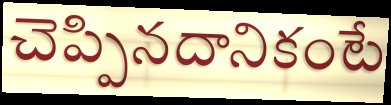
చెప్పినదానికంటే